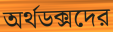
অর্থডক্সদের